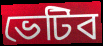
ভেটিব